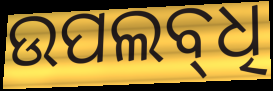
ଉପଲବ୍‌ଧି